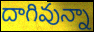
దాగివున్నా